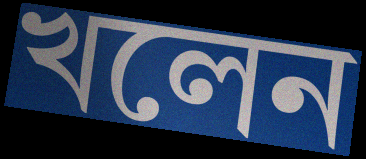
খলেন